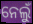
ନେଲୁଁ